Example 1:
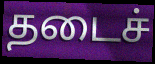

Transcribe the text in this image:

தடைச்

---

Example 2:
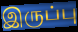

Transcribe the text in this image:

இருப்பு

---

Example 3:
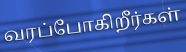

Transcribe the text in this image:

வரப்போகிறீர்கள்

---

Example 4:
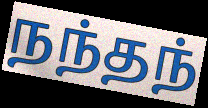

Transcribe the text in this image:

நந்தந்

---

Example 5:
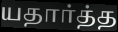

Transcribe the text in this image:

யதார்த்த